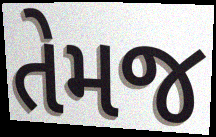
તેમજ